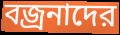
বজ্রনাদের